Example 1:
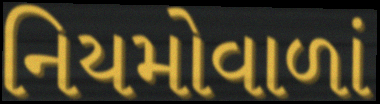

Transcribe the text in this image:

નિયમોવાળાં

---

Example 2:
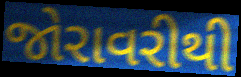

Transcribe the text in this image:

જોરાવરીથી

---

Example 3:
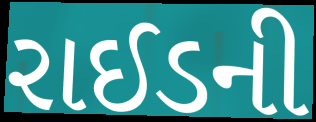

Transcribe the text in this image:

રાઈડની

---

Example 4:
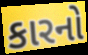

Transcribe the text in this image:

કારનો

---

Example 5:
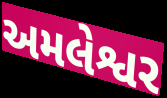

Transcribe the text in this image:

અમલેશ્વર